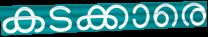
കടക്കാരെ